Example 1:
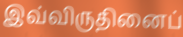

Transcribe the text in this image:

இவ்விருதினைப்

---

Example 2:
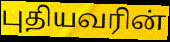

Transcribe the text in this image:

புதியவரின்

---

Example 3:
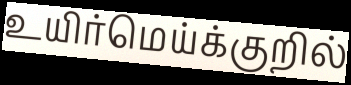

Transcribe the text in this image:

உயிர்மெய்க்குறில்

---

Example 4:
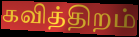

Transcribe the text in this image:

கவித்திறம்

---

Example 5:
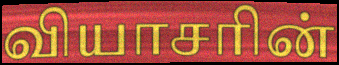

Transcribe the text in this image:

வியாசரின்